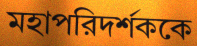
মহাপরিদর্শককে